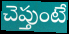
చెప్తుంటే